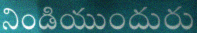
నిండియుందురు